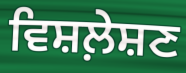
ਵਿਸ਼ਲ਼ੇਸ਼ਣ